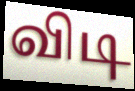
விடி